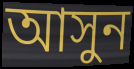
আসুন